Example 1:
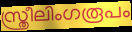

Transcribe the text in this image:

സ്ത്രീലിംഗരൂപം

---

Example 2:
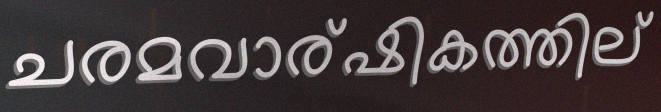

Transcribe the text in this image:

ചരമവാര്ഷികത്തില്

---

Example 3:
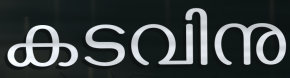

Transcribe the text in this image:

കടവിനു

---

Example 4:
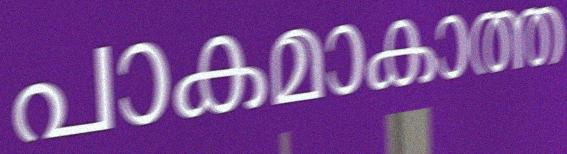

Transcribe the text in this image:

പാകമാകാത്ത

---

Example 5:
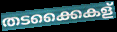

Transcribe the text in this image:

തടക്കൈകള്